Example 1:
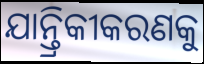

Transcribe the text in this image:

ଯାନ୍ତ୍ରିକୀକରଣକୁ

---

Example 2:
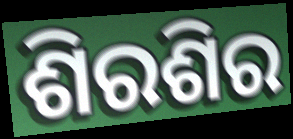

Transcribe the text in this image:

ଶିରଶିର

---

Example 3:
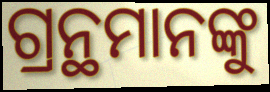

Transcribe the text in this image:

ଗ୍ରନ୍ଥମାନଙ୍କୁ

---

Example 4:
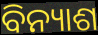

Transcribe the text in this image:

ବିନ୍ୟାଶ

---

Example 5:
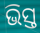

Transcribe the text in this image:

ଭିସ୍ତ